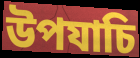
উপযাচি